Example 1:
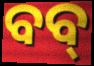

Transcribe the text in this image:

ବବ୍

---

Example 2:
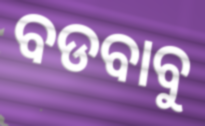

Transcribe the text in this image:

ବଡବାବୁ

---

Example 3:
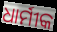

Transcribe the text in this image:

ଧାର୍ମୀକ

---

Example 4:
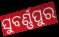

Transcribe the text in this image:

ସୁବର୍ଣ୍ଣପୁର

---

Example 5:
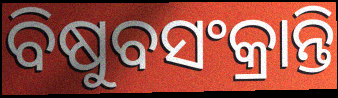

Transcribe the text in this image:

ବିଷୁବସଂକ୍ରାନ୍ତି